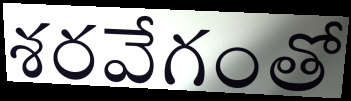
శరవేగంతో